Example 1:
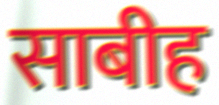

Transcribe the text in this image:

साबीह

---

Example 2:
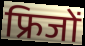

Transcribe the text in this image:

फ्रिजों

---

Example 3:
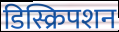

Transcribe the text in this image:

डिस्क्रिपशन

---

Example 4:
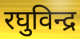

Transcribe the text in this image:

रघुविन्द्र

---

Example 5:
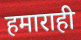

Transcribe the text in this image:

हमाराही